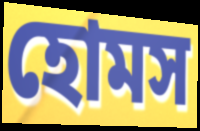
হোমস